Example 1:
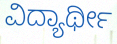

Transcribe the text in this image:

ವಿದ್ಯಾರ್ಥೀ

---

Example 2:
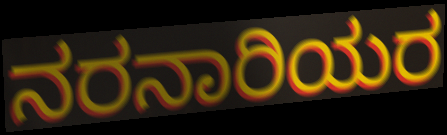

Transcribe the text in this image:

ನರನಾರಿಯರ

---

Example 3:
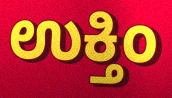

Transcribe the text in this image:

ಉಕ್ತಿಂ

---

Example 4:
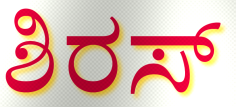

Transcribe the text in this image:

ಶಿರಸ್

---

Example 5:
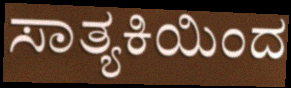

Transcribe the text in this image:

ಸಾತ್ಯಕಿಯಿಂದ